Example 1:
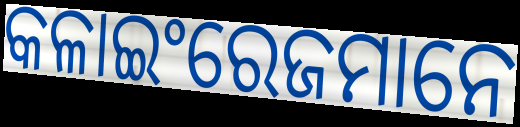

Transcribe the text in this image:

କଳାଇଂରେଜମାନେ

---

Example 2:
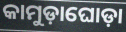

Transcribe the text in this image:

କାମୁଡ଼ାଘୋଡ଼ା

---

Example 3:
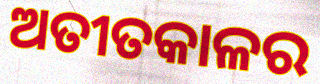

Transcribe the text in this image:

ଅତୀତକାଳର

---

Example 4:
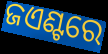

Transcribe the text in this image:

ଜଏଣ୍ଟରେ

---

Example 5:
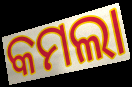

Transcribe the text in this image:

କମଲା